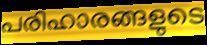
പരിഹാരങ്ങളുടെ